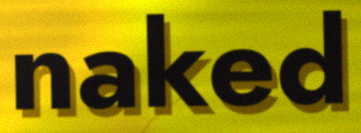
naked